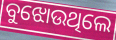
ବୁଝୋଉଥିଲେ